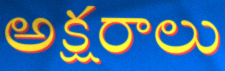
అక్షరాలు